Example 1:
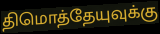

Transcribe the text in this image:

திமொத்தேயுவுக்கு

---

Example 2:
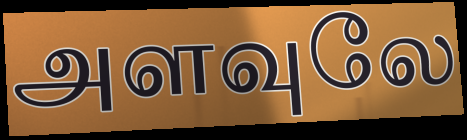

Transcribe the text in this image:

அளவுலே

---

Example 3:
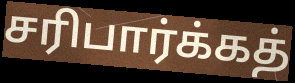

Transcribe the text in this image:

சரிபார்க்கத்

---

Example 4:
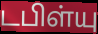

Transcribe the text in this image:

டபிள்யு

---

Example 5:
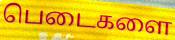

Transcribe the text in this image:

பெடைகளை